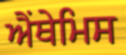
ਐਂਥੇਮਿਸ